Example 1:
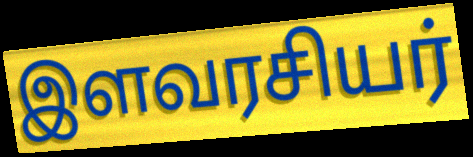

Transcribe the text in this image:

இளவரசியர்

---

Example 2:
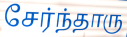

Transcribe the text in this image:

சேர்ந்தாரு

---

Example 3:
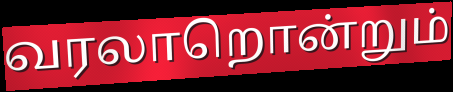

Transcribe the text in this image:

வரலாறொன்றும்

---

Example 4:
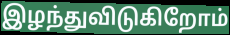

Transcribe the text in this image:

இழந்துவிடுகிறோம்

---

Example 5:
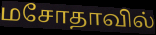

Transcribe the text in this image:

மசோதாவில்